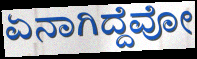
ಏನಾಗಿದ್ದೆವೋ